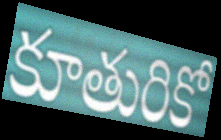
కూతురికో